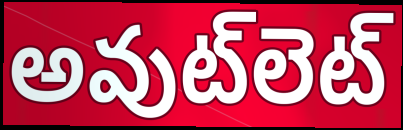
అవుట్‌లెట్